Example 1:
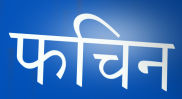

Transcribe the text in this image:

फचिन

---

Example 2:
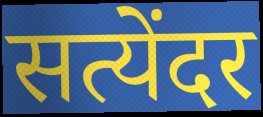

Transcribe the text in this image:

सत्येंदर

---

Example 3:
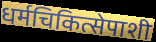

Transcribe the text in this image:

धर्मचिकित्सेपाशी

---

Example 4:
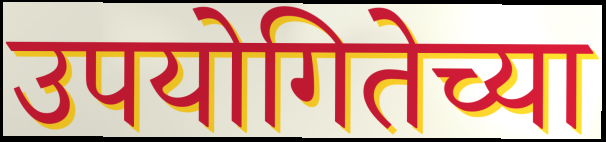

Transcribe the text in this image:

उपयोगितेच्या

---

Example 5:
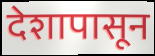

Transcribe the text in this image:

देशापासून